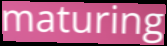
maturing